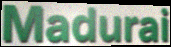
Madurai